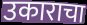
उकाराचा